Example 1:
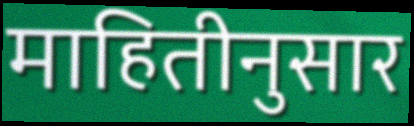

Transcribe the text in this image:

माहितीनुसार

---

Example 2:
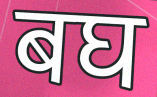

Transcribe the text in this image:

बघ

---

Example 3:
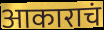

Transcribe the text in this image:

आकाराचं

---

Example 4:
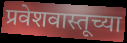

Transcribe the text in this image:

प्रवेशवास्तूच्या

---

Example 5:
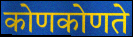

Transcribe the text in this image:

कोणकोणते